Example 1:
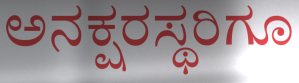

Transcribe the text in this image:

ಅನಕ್ಷರಸ್ಥರಿಗೂ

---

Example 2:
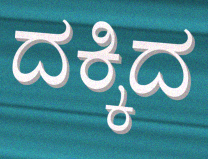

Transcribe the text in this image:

ದಕ್ಕಿದ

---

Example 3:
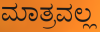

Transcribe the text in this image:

ಮಾತ್ರವಲ್ಲ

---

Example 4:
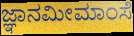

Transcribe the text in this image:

ಜ್ಞಾನಮೀಮಾಂಸೆ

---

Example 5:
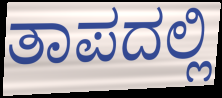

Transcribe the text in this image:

ತಾಪದಲ್ಲಿ